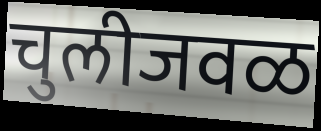
चुलीजवळ